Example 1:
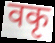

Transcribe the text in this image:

वकृ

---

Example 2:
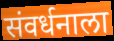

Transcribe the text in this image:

संवर्धनाला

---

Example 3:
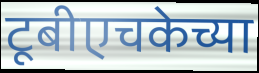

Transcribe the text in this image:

टूबीएचकेच्या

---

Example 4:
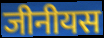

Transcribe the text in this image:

जीनीयस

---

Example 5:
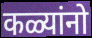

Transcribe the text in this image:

कळ्यांनो